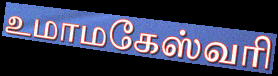
உமாமகேஸ்வரி